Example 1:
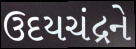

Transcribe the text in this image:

ઉદયચંદ્રને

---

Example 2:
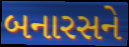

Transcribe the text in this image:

બનારસને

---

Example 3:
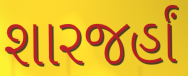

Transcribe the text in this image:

શારજર્હાં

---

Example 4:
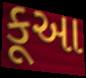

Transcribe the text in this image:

કૂઆ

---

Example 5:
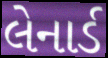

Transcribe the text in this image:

લેનાર્ડ